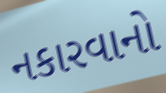
નકારવાનો